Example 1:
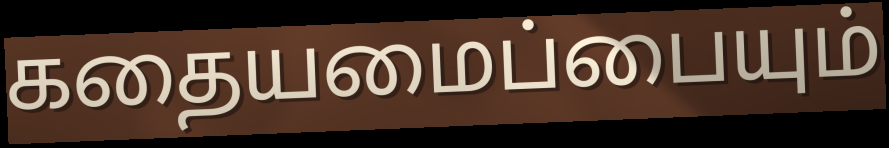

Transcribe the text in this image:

கதையமைப்பையும்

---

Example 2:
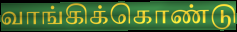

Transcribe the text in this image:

வாங்கிக்கொண்டு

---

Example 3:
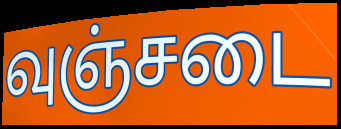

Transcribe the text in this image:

வுஞ்சடை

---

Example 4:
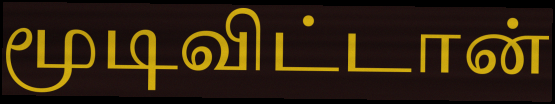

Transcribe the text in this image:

மூடிவிட்டான்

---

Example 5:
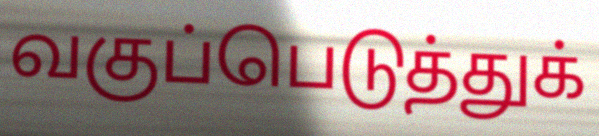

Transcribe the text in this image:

வகுப்பெடுத்துக்